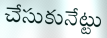
చేసుకునేట్టు